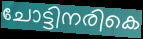
ചോട്ടിനരികെ